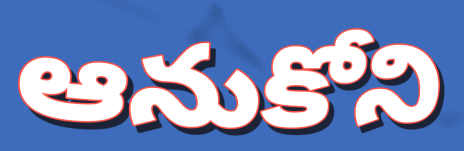
ఆనుకోని